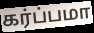
கர்ப்பமா